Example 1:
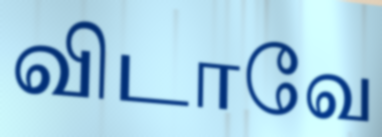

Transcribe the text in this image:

விடாவே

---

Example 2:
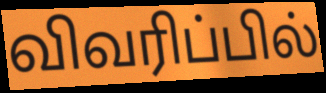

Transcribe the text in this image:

விவரிப்பில்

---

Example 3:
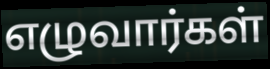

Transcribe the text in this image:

எழுவார்கள்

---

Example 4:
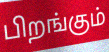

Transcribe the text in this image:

பிறங்கும்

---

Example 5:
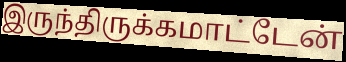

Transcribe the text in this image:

இருந்திருக்கமாட்டேன்